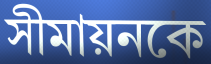
সীমায়নকে